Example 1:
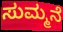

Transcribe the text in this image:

ಸುಮ್ಮನೆ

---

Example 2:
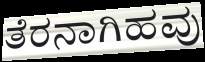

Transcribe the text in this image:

ತೆರನಾಗಿಹವು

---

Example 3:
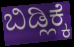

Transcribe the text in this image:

ಬಿಡ್ಲಿಕ್ಕೆ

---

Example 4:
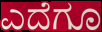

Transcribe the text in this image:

ಎದೆಗೂ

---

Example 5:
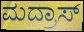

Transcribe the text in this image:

ಮದ್ರಾಸ್